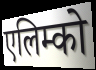
एलिम्को